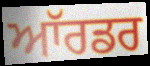
ਆੱਰਡਰ